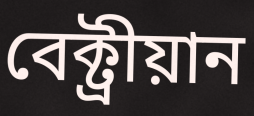
বেক্ট্ৰীয়ান